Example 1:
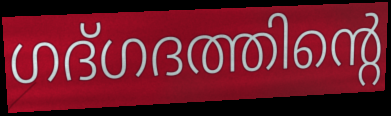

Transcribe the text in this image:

ഗദ്ഗദത്തിന്റെ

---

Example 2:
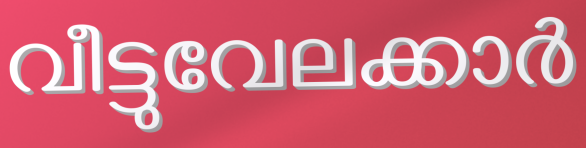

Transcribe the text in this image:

വീട്ടുവേലക്കാർ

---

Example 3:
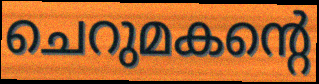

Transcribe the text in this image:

ചെറുമകന്റെ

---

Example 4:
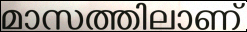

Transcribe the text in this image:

മാസത്തിലാണ്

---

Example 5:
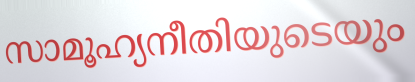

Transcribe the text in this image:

സാമൂഹ്യനീതിയുടെയും